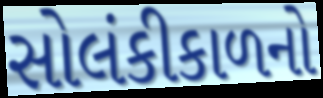
સોલંકીકાળનો